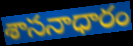
శాసనాధారం